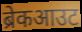
ब्रेकआउट